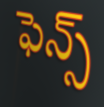
ఫెన్స్